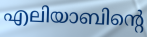
എലിയാബിന്റെ